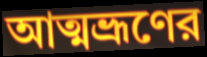
আত্মভ্রূণের